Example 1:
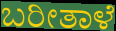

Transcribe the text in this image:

ಬರೀತಾಳೆ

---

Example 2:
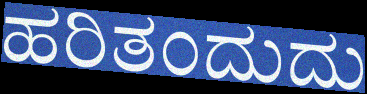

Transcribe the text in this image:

ಹರಿತಂದುದು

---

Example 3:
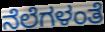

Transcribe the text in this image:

ನೆಲೆಗಳಂತೆ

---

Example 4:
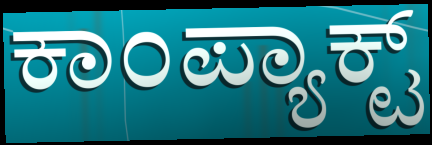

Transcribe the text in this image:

ಕಾಂಪ್ಯಾಕ್ಟ್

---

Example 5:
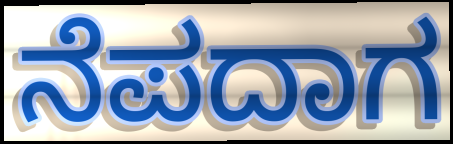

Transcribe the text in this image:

ನೆಪದಾಗ